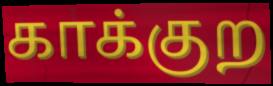
காக்குற